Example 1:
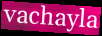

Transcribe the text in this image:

vachayla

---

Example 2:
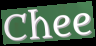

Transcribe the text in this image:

Chee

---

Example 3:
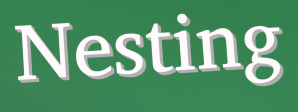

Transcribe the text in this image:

Nesting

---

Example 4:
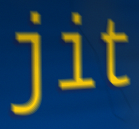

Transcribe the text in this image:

jit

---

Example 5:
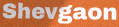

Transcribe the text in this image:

Shevgaon